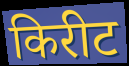
किरीट